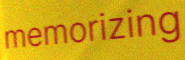
memorizing